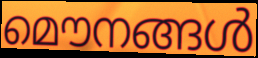
മൌനങ്ങൾ